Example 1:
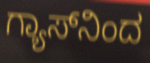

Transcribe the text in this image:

ಗ್ಯಾಸ್‌ನಿಂದ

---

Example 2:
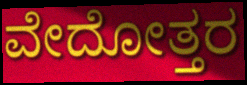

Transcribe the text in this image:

ವೇದೋತ್ತರ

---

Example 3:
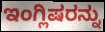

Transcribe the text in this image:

ಇಂಗ್ಲಿಷರನ್ನು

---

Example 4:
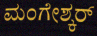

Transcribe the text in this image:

ಮಂಗೇಶ್ಕರ್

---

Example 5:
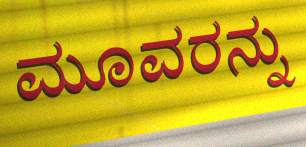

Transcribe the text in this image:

ಮೂವರನ್ನು